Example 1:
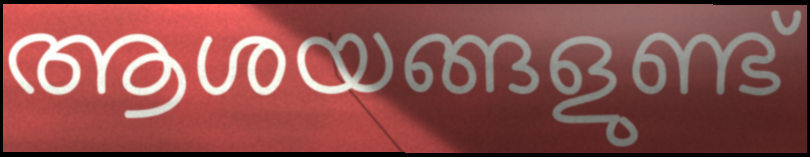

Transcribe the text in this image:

ആശയങ്ങളുണ്ട്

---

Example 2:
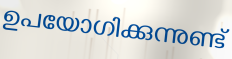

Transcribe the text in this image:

ഉപയോഗിക്കുന്നുണ്ട്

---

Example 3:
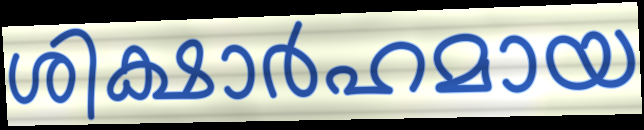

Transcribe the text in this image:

ശിക്ഷാർഹമായ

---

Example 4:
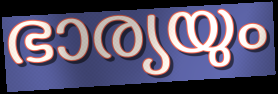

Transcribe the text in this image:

ഭാര്യയും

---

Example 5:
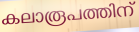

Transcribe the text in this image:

കലാരൂപത്തിന്